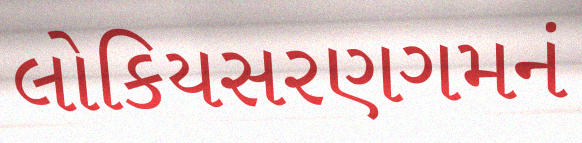
લોકિયસરણગમનં